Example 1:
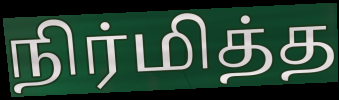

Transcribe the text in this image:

நிர்மித்த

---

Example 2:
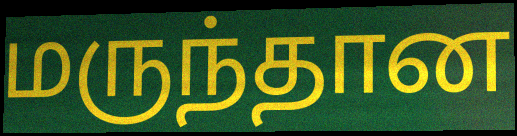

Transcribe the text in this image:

மருந்தான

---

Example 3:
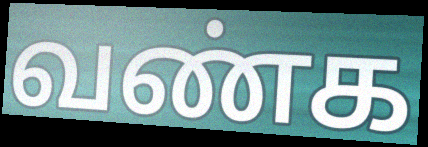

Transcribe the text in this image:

வண்க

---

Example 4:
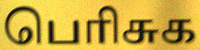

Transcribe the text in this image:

பெரிசுக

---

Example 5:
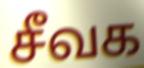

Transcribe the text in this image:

சீவக